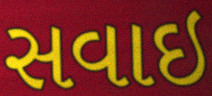
સવાઇ